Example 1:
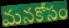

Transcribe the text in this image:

మనకోసం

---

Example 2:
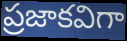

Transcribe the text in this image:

ప్రజాకవిగా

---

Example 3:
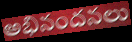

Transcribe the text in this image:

అభినందనలు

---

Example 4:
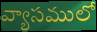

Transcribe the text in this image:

వ్యాసములో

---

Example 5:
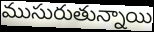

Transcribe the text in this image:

ముసురుతున్నాయి